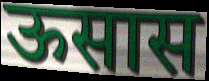
ऊसास